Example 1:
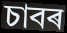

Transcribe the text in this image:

চাবৰ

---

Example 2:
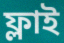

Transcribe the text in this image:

ফ্লাই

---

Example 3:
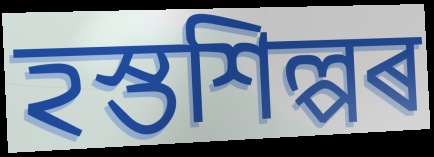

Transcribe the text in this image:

হস্তশিল্পৰ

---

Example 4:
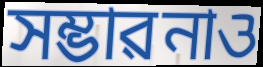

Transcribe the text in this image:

সম্ভাৱনাও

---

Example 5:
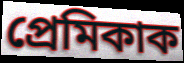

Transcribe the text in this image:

প্ৰেমিকাক